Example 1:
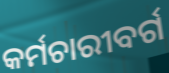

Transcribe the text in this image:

କର୍ମଚାରୀବର୍ଗ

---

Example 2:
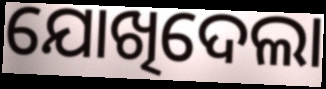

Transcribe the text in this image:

ଯୋଖିଦେଲା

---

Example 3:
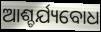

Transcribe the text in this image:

ଆଶ୍ଚର୍ଯ୍ୟବୋଧ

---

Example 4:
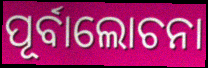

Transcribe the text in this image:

ପୂର୍ବାଲୋଚନା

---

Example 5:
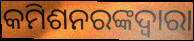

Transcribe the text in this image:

କମିଶନରଙ୍କଦ୍ୱାରା